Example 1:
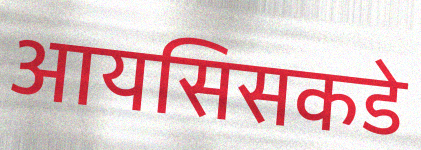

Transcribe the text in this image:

आयसिसकडे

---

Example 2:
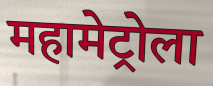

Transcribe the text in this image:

महामेट्रोला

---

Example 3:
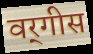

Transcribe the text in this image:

वर्गीस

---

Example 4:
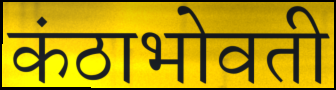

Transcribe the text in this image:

कंठाभोवती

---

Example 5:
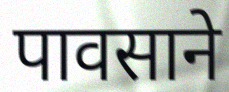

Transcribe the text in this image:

पावसाने